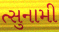
ત્સુનામી